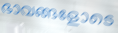
ഭാവങ്ങളോടെ